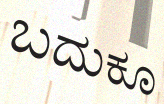
ಬದುಕೂ